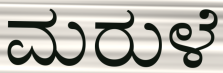
ಮರುಳೆ